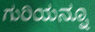
ಗುರಿಯನ್ನೂ